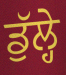
ਡੁੱਲ੍ਹੇ